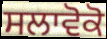
ਸਲਾਵੋਕੋ